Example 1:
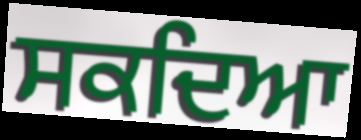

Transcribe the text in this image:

ਸਕਦਿਆ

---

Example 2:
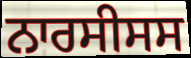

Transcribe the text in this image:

ਨਾਰਸੀਸਸ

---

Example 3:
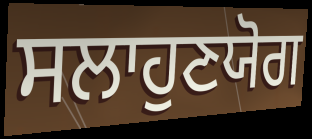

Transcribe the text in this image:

ਸਲਾਹੁਣਯੋਗ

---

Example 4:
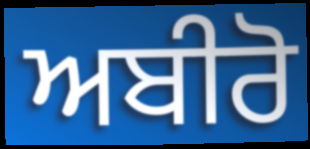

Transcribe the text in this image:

ਅਬੀਰੋ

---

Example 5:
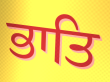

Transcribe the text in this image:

ਭਾਤਿ